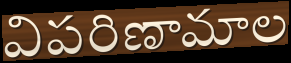
విపరిణామాల